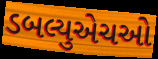
ડબલ્યુએચઓ